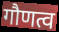
गौणत्व